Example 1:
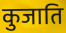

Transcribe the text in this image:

कुजाति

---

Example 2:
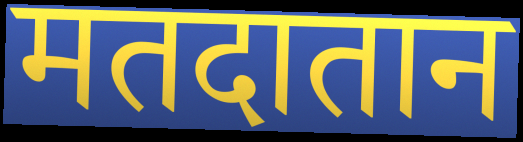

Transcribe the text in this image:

मतदातान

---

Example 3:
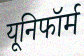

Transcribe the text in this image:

यूनिफॉर्म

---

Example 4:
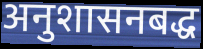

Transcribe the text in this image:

अनुशासनबद्ध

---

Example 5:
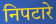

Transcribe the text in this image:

निपटारे